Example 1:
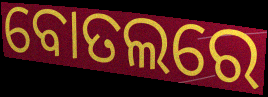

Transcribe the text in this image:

ବୋତଲରେ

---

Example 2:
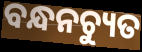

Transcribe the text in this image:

ବନ୍ଧନଚ୍ୟୁତ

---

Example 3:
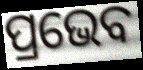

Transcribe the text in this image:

ପ୍ରଭେବ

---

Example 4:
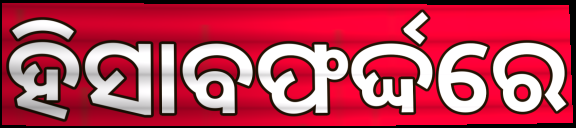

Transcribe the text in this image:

ହିସାବଫର୍ଦ୍ଦରେ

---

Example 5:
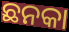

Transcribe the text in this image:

ଛନକା